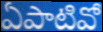
ఏపాటివో